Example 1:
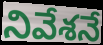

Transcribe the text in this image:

నివేశనే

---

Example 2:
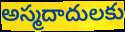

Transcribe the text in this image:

అస్మదాదులకు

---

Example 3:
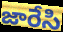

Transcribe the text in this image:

జారేసి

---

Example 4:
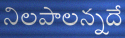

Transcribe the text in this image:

నిలపాలన్నదే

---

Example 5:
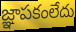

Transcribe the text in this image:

జ్ఞాపకంలేదు